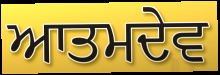
ਆਤਮਦੇਵ